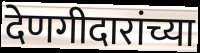
देणगीदारांच्या